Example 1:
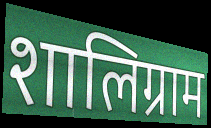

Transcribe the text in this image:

शालिग्राम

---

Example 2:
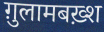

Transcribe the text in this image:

ग़ुलामबख़्श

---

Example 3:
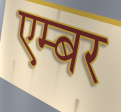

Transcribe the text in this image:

एम्बर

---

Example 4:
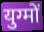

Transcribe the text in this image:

युग्मों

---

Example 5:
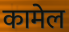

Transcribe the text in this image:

कामेल